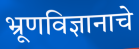
भ्रूणविज्ञानाचे